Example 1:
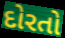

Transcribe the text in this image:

દોરતો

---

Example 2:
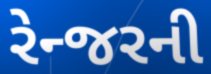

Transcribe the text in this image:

રેન્જરની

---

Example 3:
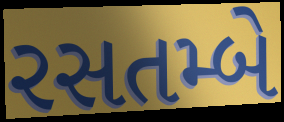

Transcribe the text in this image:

રસતમ્બે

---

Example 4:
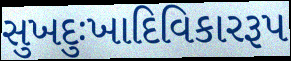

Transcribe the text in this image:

સુખદુઃખાદિવિકારરૂપ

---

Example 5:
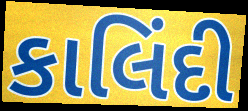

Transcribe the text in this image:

કાલિંદી